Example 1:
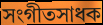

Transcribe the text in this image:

সংগীতসাধক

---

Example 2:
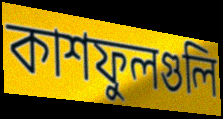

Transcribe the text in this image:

কাশফুলগুলি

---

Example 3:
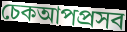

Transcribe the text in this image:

চেকআপপ্রসব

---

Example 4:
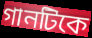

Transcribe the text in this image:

গানটিকে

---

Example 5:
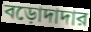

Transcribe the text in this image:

বড়োদাদার